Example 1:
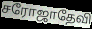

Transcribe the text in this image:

சரோஜாதேவி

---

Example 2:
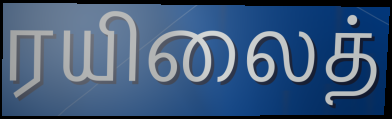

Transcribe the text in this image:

ரயிலைத்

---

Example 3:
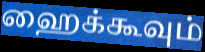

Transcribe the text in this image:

ஹைக்கூவும்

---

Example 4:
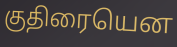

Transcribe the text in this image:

குதிரையென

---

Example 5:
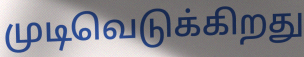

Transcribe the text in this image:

முடிவெடுக்கிறது